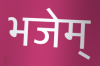
भजेम्